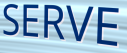
SERVE